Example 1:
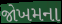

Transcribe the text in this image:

જોખમના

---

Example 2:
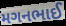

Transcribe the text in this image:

મગનભાઈ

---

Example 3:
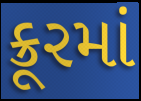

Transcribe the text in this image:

ક્રૂરમાં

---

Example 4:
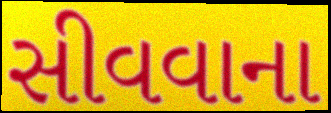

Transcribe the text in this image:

સીવવાના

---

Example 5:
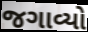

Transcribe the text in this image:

જગાવ્યો